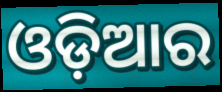
ଓଡ଼ିଆର